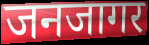
जनजागर